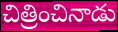
చిత్రించినాడు